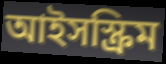
আইসস্ক্রিম